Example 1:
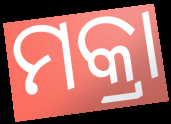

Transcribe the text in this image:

ମକ୍ରା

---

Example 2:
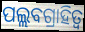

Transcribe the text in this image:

ପଲ୍ଲବଗ୍ରାହିତ୍ୱ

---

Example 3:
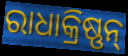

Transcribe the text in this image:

ରାଧାକ୍ରିଷ୍ଣନ୍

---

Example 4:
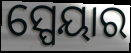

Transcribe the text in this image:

ସ୍ପେୟାର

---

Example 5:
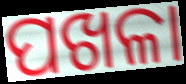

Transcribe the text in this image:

ପଖଳା